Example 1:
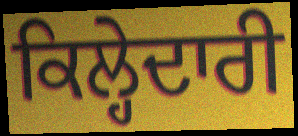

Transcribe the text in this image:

ਕਿਲ੍ਹੇਦਾਰੀ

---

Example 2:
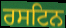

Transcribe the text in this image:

ਰਸਟਿਨ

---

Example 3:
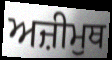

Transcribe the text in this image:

ਅਜ਼ੀਮੁਥ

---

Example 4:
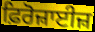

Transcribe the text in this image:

ਫ਼ਿਰੋਜ਼ਾਈਜ਼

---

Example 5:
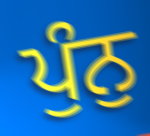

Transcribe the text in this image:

ਪੁੰਨੁ